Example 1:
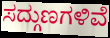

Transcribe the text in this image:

ಸದ್ಗುಣಗಳಿವೆ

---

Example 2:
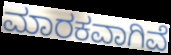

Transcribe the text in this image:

ಮಾರಕವಾಗಿವೆ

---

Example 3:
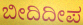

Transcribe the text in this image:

ಬೀದಿದೀಪ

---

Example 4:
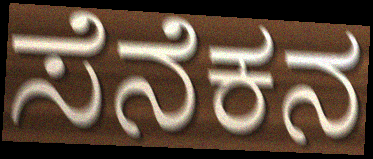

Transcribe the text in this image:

ಸೆನೆಕನ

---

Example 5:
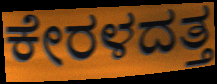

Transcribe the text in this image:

ಕೇರಳದತ್ತ